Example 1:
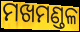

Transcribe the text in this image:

ମଖମଣ୍ଡଳ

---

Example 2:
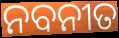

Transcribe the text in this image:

ନବନୀତ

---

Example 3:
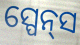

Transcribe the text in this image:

ସ୍ପେନ୍‌ସ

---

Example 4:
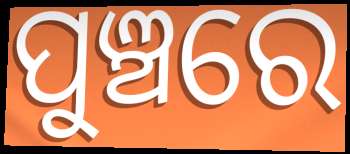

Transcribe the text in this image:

ପୁଞ୍ଚରେ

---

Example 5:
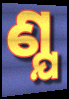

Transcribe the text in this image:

ଣ୍ଯ